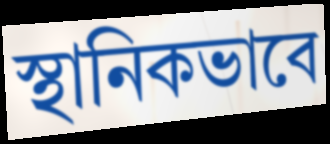
স্থানিকভাবে